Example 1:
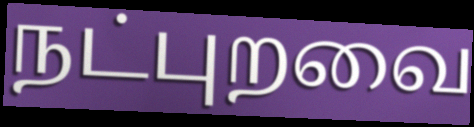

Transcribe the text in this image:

நட்புறவை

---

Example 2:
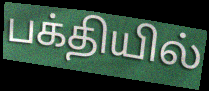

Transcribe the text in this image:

பக்தியில்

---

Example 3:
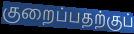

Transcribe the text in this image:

குறைப்பதற்குப்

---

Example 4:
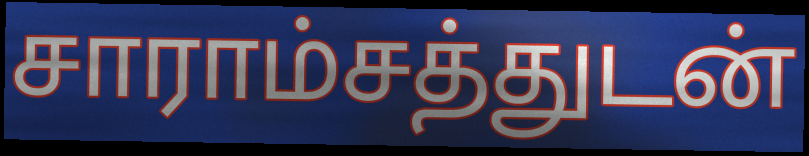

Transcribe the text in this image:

சாராம்சத்துடன்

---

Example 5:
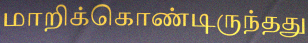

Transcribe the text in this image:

மாறிக்கொண்டிருந்தது